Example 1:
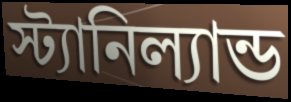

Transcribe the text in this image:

স্ট্যানিল্যান্ড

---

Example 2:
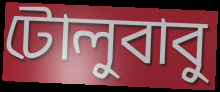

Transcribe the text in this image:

টোলুবাবু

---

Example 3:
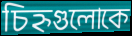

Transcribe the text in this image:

চিহ্নগুলোকে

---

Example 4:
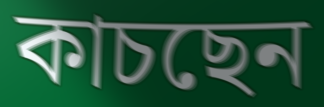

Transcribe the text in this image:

কাচছেন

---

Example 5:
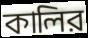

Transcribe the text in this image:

কালির